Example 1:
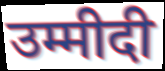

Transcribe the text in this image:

उम्मीदी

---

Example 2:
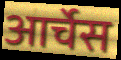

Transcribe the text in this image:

आर्चेस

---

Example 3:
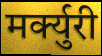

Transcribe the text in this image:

मर्क्युरी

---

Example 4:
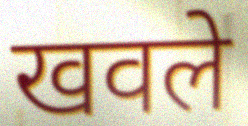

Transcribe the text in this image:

खवले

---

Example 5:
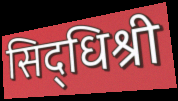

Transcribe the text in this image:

सिद्धिश्री